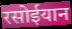
रसोईयान